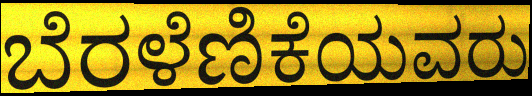
ಬೆರಳೆಣಿಕೆಯವರು